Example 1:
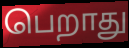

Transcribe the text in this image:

பெறாது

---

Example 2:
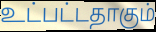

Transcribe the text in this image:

உட்பட்டதாகும்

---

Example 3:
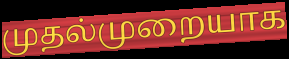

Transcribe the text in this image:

முதல்முறையாக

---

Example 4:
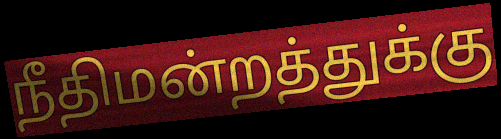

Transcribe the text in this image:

நீதிமன்றத்துக்கு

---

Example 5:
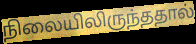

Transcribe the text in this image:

நிலையிலிருந்ததால்